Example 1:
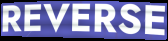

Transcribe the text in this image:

REVERSE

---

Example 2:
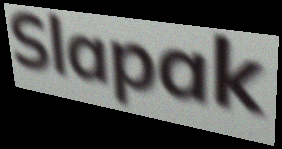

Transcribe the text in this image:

Slapak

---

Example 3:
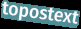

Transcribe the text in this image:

topostext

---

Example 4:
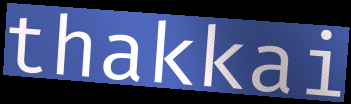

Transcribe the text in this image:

thakkai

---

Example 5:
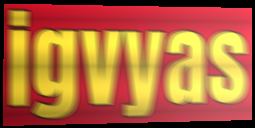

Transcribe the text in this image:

igvyas